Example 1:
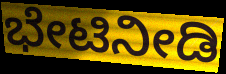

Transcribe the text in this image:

ಭೇಟಿನೀಡಿ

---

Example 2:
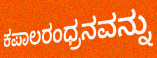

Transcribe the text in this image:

ಕಪಾಲರಂಧ್ರನವನ್ನು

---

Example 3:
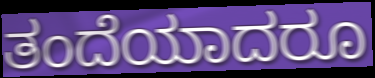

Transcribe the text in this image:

ತಂದೆಯಾದರೂ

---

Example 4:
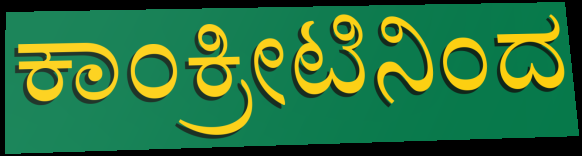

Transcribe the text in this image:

ಕಾಂಕ್ರೀಟಿನಿಂದ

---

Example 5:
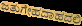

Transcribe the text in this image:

ಜತುಗೇಹದಾಹದಲಿ